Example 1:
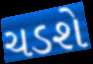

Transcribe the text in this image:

ચડશે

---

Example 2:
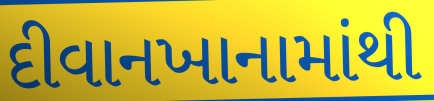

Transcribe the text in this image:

દીવાનખાનામાંથી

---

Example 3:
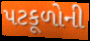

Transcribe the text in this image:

પટકૂળોની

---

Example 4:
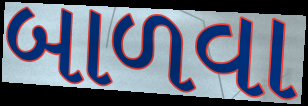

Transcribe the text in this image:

બાળવા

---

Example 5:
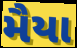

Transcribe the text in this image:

મૈયા